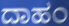
ದಾಹಂ